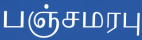
பஞ்சமரபு